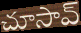
చూసావ్